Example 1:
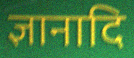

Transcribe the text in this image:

ज्ञानादि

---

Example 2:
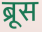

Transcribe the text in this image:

ब्रूस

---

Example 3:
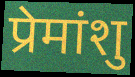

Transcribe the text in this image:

प्रेमांशु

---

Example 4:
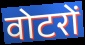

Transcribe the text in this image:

वोटरों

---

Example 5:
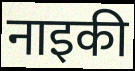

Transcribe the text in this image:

नाइकी